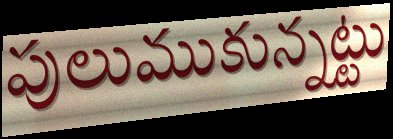
పులుముకున్నట్టు